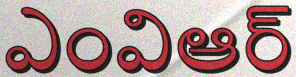
ఎంవిఆర్